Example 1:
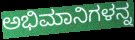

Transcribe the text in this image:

ಅಭಿಮಾನಿಗಳನ್ನ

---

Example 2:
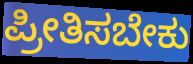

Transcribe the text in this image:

ಪ್ರೀತಿಸಬೇಕು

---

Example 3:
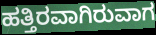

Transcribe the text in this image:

ಹತ್ತಿರವಾಗಿರುವಾಗ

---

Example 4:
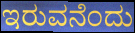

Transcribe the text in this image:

ಇರುವನೆಂದು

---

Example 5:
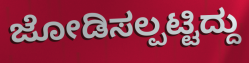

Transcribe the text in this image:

ಜೋಡಿಸಲ್ಪಟ್ಟಿದ್ದು